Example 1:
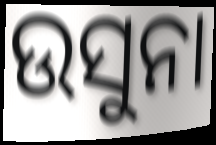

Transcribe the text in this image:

ଉସୁନା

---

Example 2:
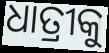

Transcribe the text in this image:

ଧାତ୍ରୀକୁ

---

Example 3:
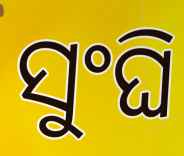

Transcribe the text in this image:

ସୁଂଘି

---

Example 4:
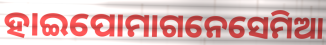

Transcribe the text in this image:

ହାଇପୋମାଗନେସେମିଆ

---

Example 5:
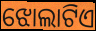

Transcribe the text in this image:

ଝୋଲାଟିଏ